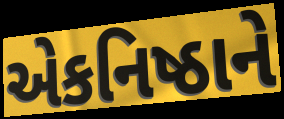
એકનિષ્ઠાને